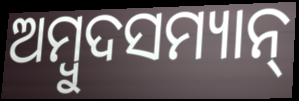
ଅମ୍ୱୁଦସମ୍ୟାନ୍